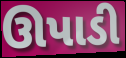
ઊપાડી